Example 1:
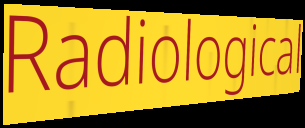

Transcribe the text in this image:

Radiological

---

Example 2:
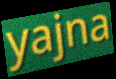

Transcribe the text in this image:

yajna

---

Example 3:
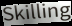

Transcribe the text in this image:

Skilling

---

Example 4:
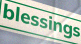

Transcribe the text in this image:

blessings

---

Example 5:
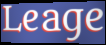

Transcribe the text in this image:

Leage